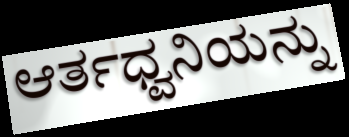
ಆರ್ತಧ್ವನಿಯನ್ನು